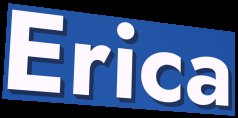
Erica